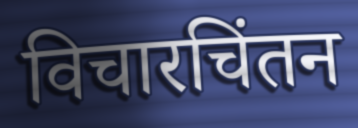
विचारचिंतन